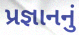
પ્રજ્ઞાનનું